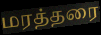
மரத்தரை